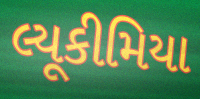
લ્યૂકીમિયા